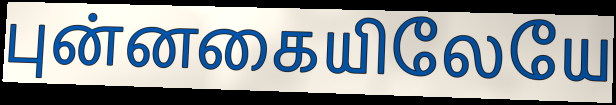
புன்னகையிலேயே